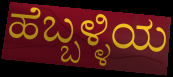
ಹೆಬ್ಬಳ್ಳಿಯ